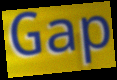
Gap